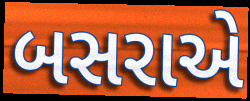
બસરાએ